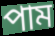
পাম